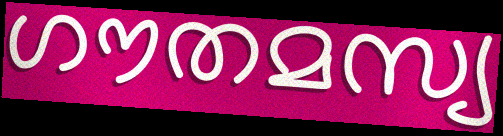
ഗൗതമസ്യ